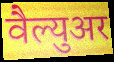
वैल्युअर